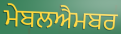
ਮੇਬਲਐਮਬਰ